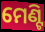
ମେଣ୍ଟି